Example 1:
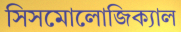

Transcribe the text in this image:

সিসমোলোজিক্যাল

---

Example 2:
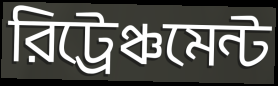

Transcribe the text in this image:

রিট্রেঞ্চমেন্ট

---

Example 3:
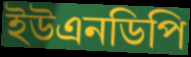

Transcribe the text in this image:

ইউএনডিপি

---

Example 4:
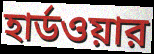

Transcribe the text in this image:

হার্ডওয়ার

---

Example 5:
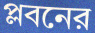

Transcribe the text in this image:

প্লবনের